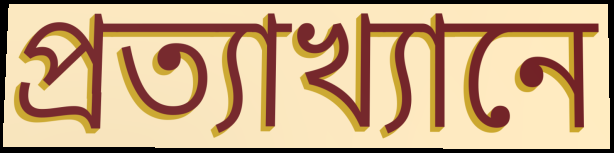
প্রত্যাখ্যানে